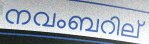
നവംബറില്